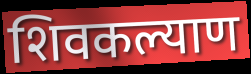
शिवकल्याण